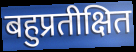
बहुप्रतीक्षित